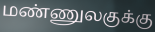
மண்ணுலகுக்கு